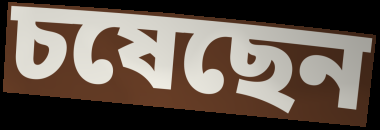
চষেছেন